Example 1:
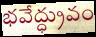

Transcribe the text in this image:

భవేద్ధ్రువం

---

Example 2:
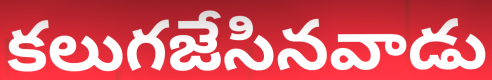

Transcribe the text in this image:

కలుగజేసినవాడు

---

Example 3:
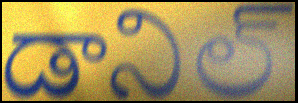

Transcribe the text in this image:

డానిల్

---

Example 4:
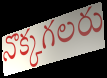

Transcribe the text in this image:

నొక్కగలరు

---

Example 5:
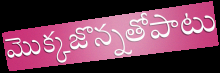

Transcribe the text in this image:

మొక్కజొన్నతోపాటు